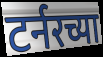
टर्नरच्या